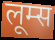
लूम्स